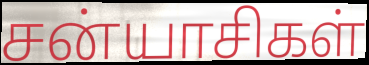
சன்யாசிகள்